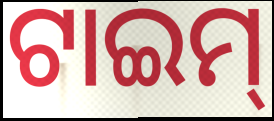
ଟାଇମ୍